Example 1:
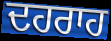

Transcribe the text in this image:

ਦਹਰਾਹ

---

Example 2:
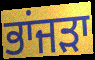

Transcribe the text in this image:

ਭਾਂਜੜਾ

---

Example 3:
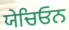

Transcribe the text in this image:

ਯੇਚਿਓਨ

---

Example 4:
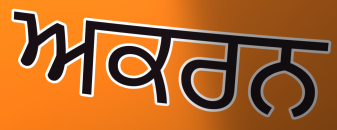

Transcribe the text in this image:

ਅਕਰਨ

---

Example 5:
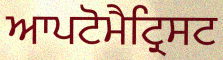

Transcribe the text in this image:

ਆਪਟੋਮੈਟ੍ਰਿਸਟ